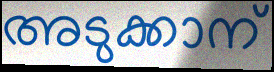
അടുക്കാന്